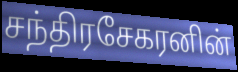
சந்திரசேகரனின்